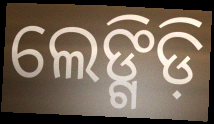
ଲେଙ୍ଗିଡ଼ି